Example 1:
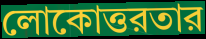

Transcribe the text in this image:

লোকোত্তরতার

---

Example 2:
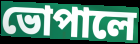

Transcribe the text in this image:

ভোপালে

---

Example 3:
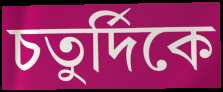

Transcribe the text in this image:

চতুর্দিকে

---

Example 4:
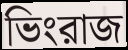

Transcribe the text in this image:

ভিংরাজ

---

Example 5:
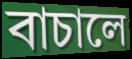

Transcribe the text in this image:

বাচালে